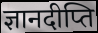
ज्ञानदीप्ति